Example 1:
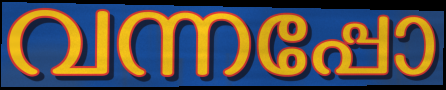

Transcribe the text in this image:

വന്നപ്പോ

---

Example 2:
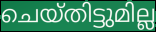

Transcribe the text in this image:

ചെയ്തിട്ടുമില്ല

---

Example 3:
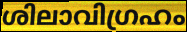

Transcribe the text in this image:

ശിലാവിഗ്രഹം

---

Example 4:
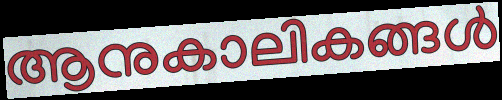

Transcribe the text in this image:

ആനുകാലികങ്ങൾ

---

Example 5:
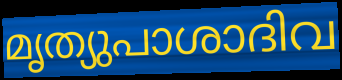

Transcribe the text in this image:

മൃത്യുപാശാദിവ